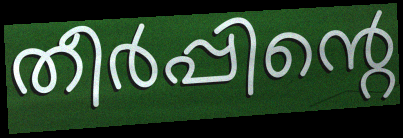
തീർപ്പിന്റെ